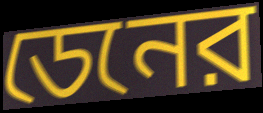
ডেনের